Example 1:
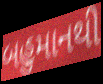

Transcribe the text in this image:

બહુમાનથી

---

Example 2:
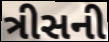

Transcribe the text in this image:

ત્રીસની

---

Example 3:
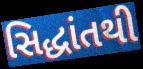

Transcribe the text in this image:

સિદ્ધાંતથી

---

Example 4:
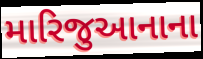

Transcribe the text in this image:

મારિજુઆનાના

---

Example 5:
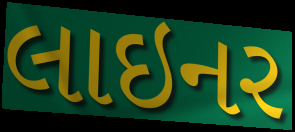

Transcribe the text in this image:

લાઇનર